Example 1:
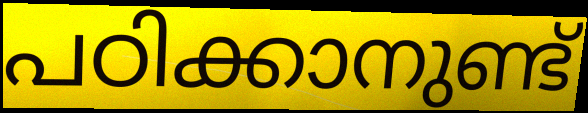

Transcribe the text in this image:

പഠിക്കാനുണ്ട്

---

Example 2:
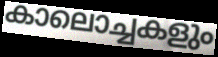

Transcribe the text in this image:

കാലൊച്ചകളും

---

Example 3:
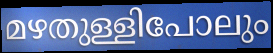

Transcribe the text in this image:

മഴതുള്ളിപോലും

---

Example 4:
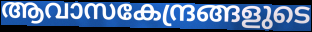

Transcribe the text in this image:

ആവാസകേന്ദ്രങ്ങളുടെ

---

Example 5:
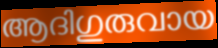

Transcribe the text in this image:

ആദിഗുരുവായ